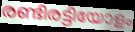
രണ്ടിരട്ടിയോളം